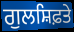
ਗੁਲਸ਼ਿਫ਼ਤੇ